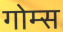
गोम्स